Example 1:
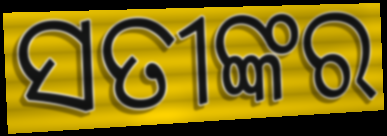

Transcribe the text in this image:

ସତୀଙ୍କର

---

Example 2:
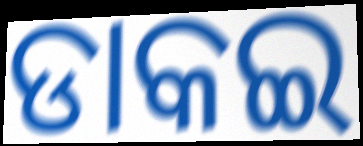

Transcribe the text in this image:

ଡାକଇ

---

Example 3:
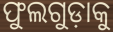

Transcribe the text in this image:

ଫୁଲଗୁଡ଼ାକୁ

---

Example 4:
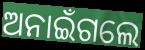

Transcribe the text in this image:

ଅନାଇଁଗଲେ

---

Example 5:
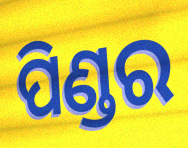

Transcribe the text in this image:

ପିଣ୍ଡର